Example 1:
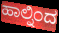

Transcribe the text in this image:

ಹಾಲ್ನಿಂದ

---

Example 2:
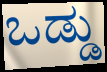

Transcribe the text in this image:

ಒಡ್ಡು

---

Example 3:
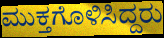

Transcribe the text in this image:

ಮುಕ್ತಗೊಳಿಸಿದ್ದರು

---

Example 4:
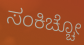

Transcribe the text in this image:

ಸಂಕಿಚ್ಚೋ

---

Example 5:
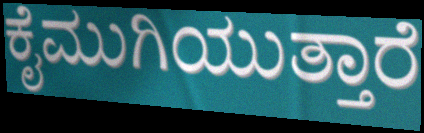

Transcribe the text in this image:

ಕೈಮುಗಿಯುತ್ತಾರೆ